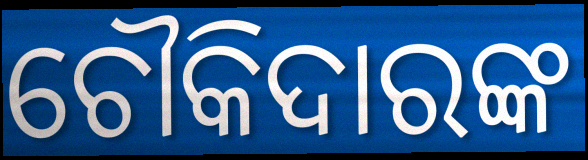
ଚୌକିଦାରଙ୍କ